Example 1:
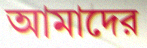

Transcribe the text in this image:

আমাদের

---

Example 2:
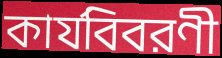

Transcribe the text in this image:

কার্যবিবরণী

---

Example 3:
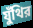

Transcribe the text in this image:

যুঁথির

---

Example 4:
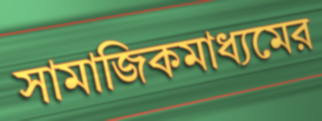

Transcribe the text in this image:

সামাজিকমাধ্যমের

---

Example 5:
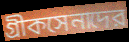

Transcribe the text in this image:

গ্রীকসেনাদের